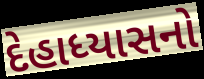
દેહાધ્યાસનો